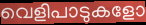
വെളിപാടുകളോ